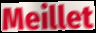
Meillet